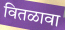
वितळावा